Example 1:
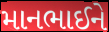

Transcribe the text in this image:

માનભાઈને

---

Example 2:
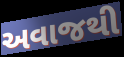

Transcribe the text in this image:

અવાજથી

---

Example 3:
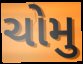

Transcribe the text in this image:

ચોમુ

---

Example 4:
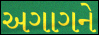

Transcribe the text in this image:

અગાગને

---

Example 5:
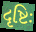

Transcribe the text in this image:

દૃષ્ટિઃ